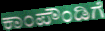
ಕಾಂಪೌಂಡಿಗೆ